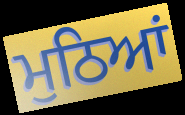
ਮੁਠਿਆਂ